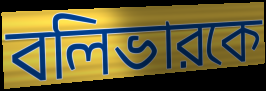
বলিভারকে